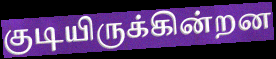
குடியிருக்கின்றன